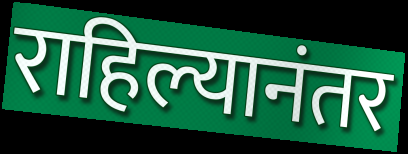
राहिल्यानंतर